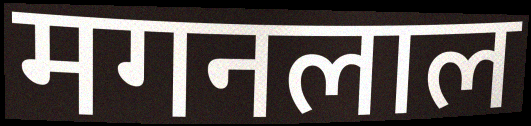
मगनलाल